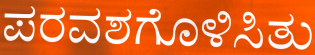
ಪರವಶಗೊಳಿಸಿತು